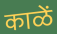
काळें